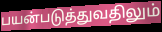
பயன்படுத்துவதிலும்